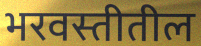
भरवस्तीतील